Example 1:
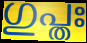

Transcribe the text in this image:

ഗുപ്തഃ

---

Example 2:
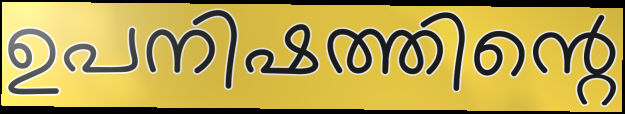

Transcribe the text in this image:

ഉപനിഷത്തിന്റെ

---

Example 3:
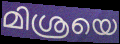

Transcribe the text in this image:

മിശ്രയെ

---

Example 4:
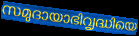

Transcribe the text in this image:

സമുദായാഭിവൃദ്ധിയെ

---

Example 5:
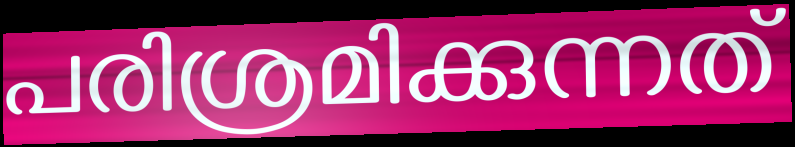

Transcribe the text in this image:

പരിശ്രമിക്കുന്നത്